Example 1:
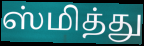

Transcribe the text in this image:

ஸ்மித்து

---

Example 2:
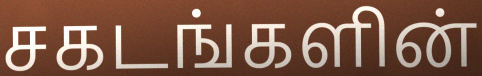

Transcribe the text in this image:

சகடங்களின்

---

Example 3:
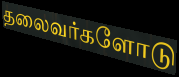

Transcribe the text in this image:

தலைவர்களோடு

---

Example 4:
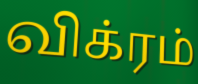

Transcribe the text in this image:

விக்ரம்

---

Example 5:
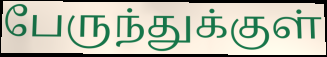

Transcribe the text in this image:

பேருந்துக்குள்